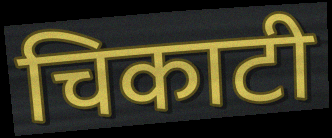
चिकाटी